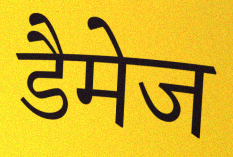
डैमेज